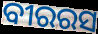
ବୀରରସ